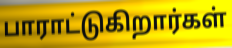
பாராட்டுகிறார்கள்